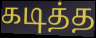
கடித்த